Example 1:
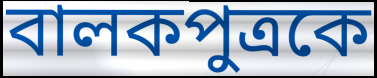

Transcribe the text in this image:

বালকপুত্রকে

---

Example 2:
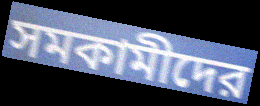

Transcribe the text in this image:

সমকামীদের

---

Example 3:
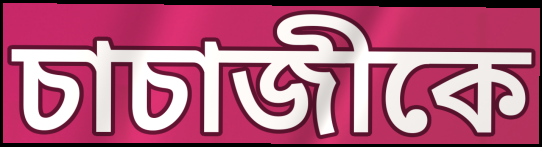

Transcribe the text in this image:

চাচাজীকে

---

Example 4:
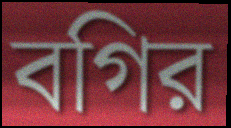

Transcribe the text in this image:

বগির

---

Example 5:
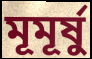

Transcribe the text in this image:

মূমূর্ষু